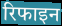
रिफाइन